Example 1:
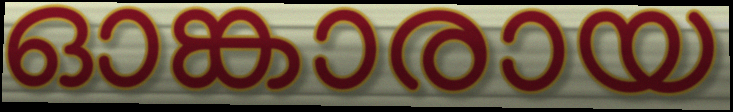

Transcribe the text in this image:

ഓങ്കാരായ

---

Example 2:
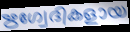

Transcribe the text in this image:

ഋഗ്വേദികളായ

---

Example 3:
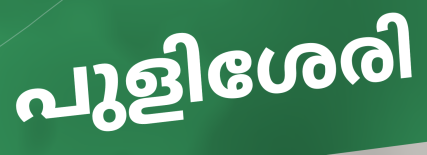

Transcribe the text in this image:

പുളിശേരി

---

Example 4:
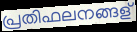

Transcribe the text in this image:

പ്രതിഫലനങ്ങള്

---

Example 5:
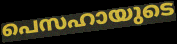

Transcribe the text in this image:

പെസഹായുടെ